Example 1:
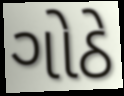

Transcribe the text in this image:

ગોઠે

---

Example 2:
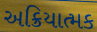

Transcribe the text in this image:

અક્રિયાત્મક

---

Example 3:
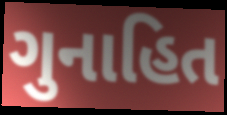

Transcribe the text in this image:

ગુનાહિત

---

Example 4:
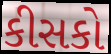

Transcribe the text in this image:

કીસકો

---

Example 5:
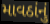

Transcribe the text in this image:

માવઠાંનું